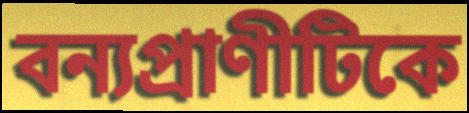
বন্যপ্রাণীটিকে